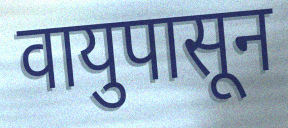
वायुपासून